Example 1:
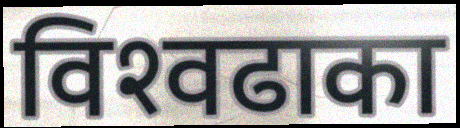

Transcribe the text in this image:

विश्वढाका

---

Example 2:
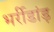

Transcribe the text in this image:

भर्रीडांड़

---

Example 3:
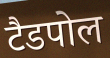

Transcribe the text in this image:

टैडपोल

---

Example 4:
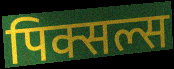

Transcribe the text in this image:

पिक्सल्स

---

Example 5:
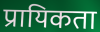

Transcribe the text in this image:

प्रायिकता